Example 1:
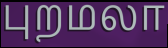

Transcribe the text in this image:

புறமலா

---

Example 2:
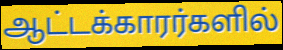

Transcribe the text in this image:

ஆட்டக்காரர்களில்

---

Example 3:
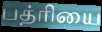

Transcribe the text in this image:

பத்ரியை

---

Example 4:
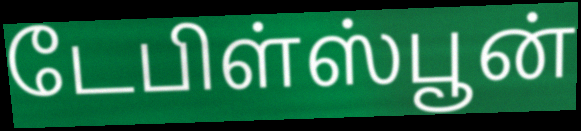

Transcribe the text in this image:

டேபிள்ஸ்பூன்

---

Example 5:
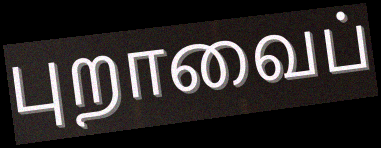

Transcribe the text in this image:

புறாவைப்